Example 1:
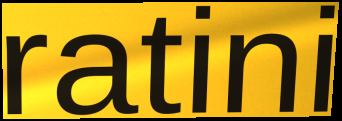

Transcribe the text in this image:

ratini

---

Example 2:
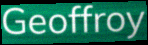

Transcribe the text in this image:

Geoffroy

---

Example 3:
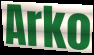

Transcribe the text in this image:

Arko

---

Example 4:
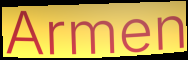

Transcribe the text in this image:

Armen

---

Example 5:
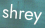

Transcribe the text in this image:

shrey